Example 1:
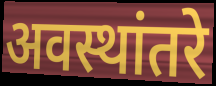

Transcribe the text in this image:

अवस्थांतरे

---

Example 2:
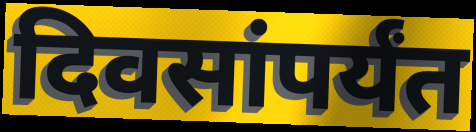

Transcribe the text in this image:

दिवसांपर्यंत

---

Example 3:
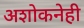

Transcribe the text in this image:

अशोकनेही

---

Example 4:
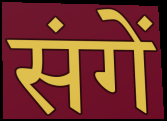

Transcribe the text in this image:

संगें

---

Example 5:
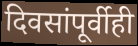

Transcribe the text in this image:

दिवसांपूर्वीही